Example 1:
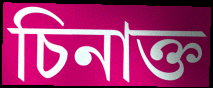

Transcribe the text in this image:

চিনাক্ত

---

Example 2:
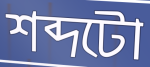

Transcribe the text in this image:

শব্দটো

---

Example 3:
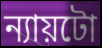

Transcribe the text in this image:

ন্যায়টো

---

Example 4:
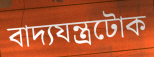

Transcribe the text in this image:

বাদ্যযন্ত্ৰটোক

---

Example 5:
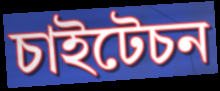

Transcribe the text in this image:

চাইটেচন